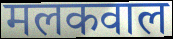
मलकवाल